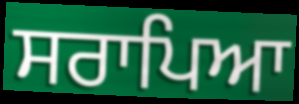
ਸਰਾਪਿਆ